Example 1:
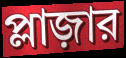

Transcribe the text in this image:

প্লাজ়ার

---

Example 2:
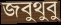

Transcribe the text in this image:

জবুথুবু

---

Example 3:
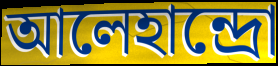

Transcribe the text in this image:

আলেহান্দ্রো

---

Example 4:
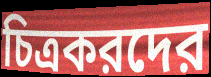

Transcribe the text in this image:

চিত্রকরদের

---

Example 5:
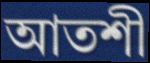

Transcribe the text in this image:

আতশী